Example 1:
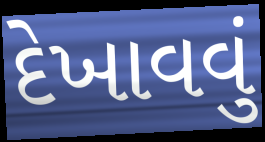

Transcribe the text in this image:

દેખાવવું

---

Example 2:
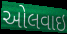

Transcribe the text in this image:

ઓલવાઇ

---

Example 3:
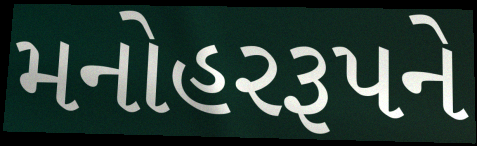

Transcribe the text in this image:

મનોહરરૂપને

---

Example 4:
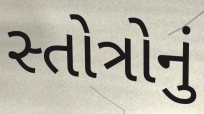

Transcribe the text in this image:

સ્તોત્રોનું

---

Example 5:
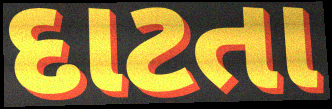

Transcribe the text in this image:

દાટતા